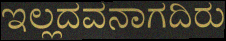
ಇಲ್ಲದವನಾಗದಿರು